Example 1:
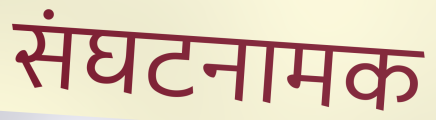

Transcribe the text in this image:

संघटनामक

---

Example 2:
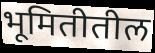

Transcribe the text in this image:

भूमितीतील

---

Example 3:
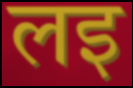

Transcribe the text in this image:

लइ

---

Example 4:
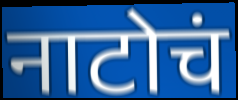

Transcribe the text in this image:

नाटोचं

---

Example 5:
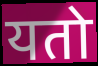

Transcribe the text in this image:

यतो